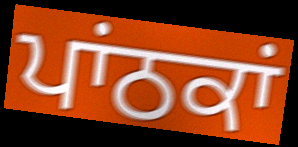
ਪਾਂਠਕਾਂ